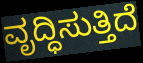
ವೃದ್ಧಿಸುತ್ತಿದೆ